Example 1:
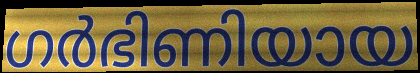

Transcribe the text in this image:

ഗർഭിണിയായ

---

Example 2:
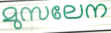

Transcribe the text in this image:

മുസലേന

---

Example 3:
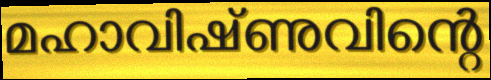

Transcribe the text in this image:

മഹാവിഷ്‌ണുവിന്റെ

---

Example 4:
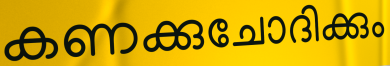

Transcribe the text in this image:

കണക്കുചോദിക്കും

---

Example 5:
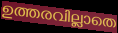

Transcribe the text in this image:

ഉത്തരവില്ലാതെ